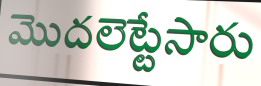
మొదలెట్టేసారు